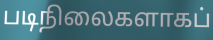
படிநிலைகளாகப்